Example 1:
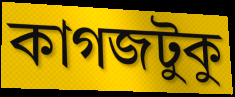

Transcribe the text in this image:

কাগজটুকু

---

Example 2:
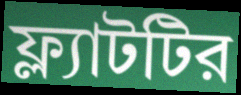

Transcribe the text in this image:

ফ্ল্যাটটির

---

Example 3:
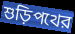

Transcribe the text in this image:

শুড়িপথের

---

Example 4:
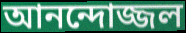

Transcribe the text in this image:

আনন্দোজ্জল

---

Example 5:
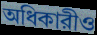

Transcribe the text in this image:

অধিকারীও